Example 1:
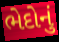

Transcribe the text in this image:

ભેદોનું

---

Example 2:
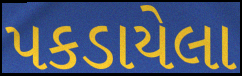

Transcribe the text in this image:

પકડાયેલા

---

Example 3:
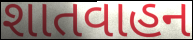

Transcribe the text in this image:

શાતવાહન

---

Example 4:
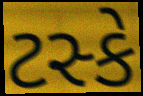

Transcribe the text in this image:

ટસ્કે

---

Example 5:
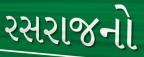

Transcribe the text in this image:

રસરાજનો